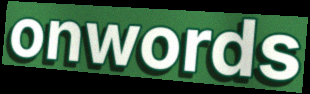
onwords